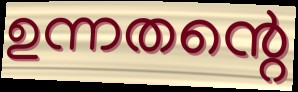
ഉന്നതന്റെ